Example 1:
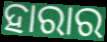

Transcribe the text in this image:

ହାରାର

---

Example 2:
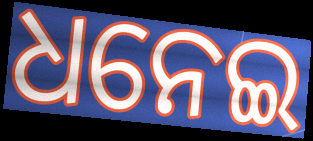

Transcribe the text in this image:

ଧନେଇ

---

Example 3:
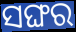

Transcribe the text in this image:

ସଙ୍ଘର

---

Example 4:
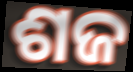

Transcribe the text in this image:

ଶଜ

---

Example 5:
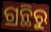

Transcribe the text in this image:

ଗ୍ରନ୍ଥିରୁ